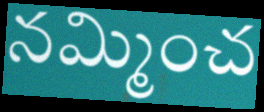
నమ్మించ